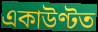
একাউণ্টত